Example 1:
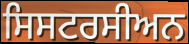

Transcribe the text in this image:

ਸਿਸਟਰਸੀਅਨ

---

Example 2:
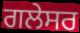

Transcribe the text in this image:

ਗਲੇਸਰ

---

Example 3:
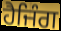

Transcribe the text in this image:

ਹੈਜਿੰਗ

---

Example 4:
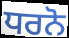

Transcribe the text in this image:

ਧਰਨੋ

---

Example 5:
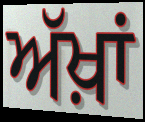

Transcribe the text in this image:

ਅੱਖ਼ਾਂ